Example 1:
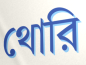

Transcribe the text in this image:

থোরি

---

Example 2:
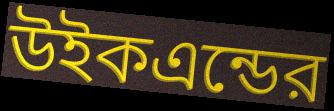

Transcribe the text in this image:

উইকএন্ডের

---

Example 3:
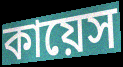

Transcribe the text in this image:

কায়েস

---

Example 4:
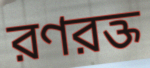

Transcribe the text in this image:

রণরক্ত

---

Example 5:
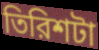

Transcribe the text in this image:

তিরিশটা